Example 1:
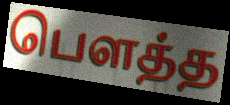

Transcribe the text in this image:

பெளத்த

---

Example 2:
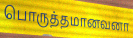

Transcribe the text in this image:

பொருத்தமானவனா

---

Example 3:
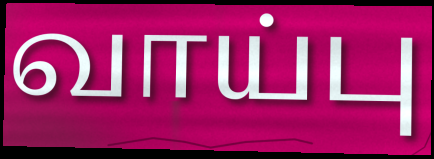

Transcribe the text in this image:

வாய்பு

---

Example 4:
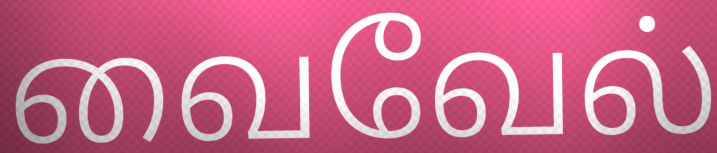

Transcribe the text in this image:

வைவேல்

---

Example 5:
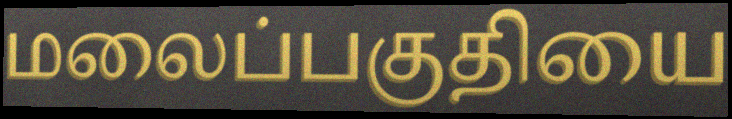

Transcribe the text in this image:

மலைப்பகுதியை